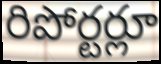
రిపోర్టర్లూ